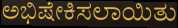
ಅಭಿಷೇಕಿಸಲಾಯಿತು